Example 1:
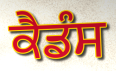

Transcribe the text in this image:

ਕੈਡੰਸ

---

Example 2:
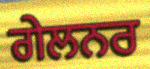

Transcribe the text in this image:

ਗੇਲਨਰ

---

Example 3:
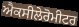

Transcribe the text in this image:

ਐਕਸੀਲੇਰੋਮੀਟਰ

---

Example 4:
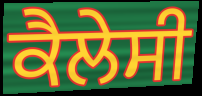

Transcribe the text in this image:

ਕੈਲੇਸੀ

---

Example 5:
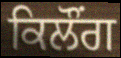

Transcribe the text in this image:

ਕਿਲੌਂਗ